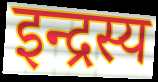
इन्द्रस्य